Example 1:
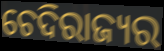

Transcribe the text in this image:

ଚେଦିରାଜ୍ୟର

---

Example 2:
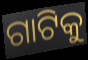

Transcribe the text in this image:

ଗାଟିକୁ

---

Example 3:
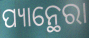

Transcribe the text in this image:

ପ୍ୟାନ୍ଥେରା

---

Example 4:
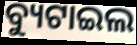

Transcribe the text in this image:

ବ୍ୟୁଟାଇଲ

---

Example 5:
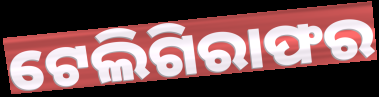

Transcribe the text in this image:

ଟେଲିଗିରାଫର